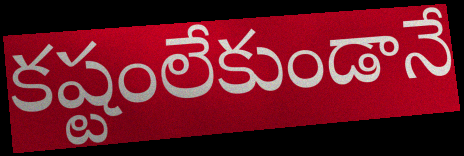
కష్టంలేకుండానే